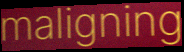
maligning